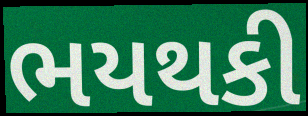
ભયથકી